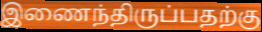
இணைந்திருப்பதற்கு